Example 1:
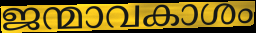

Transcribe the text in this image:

ജന്മാവകാശം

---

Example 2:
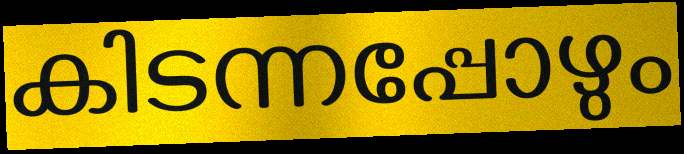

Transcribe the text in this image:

കിടന്നപ്പോഴും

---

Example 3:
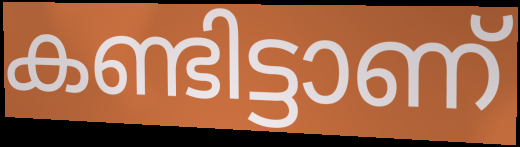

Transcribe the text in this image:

കണ്ടിട്ടാണ്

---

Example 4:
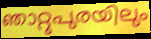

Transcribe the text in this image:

ഞാറ്റുപുരയിലും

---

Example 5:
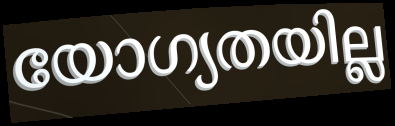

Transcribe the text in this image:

യോഗ്യതയില്ല